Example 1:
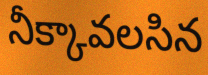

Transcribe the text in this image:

నీక్కావలసిన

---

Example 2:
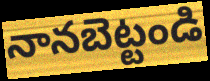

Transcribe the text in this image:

నానబెట్టండి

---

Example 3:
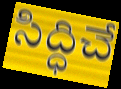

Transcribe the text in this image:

సిద్ధిచే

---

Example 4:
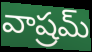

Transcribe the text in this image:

వాష్రమ్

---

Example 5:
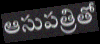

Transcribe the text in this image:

ఆసుపత్రితో